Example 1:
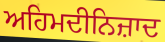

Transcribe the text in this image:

ਅਹਿਮਦੀਨਿਜ਼ਾਦ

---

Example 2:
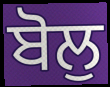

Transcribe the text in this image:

ਬੋਲੁ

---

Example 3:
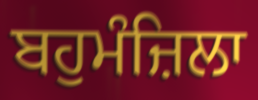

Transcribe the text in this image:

ਬਹੁਮੰਜ਼ਿਲਾ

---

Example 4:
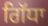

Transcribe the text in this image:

ਗਿੱਧਾ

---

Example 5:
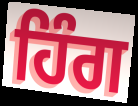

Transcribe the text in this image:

ਹਿੰਗ